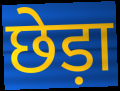
छेड़ा